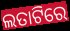
ଲତାଟିରେ